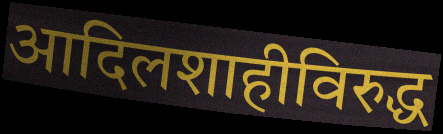
आदिलशाहीविरुद्ध